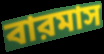
বারমাস